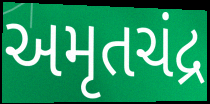
અમૃતચંદ્ર